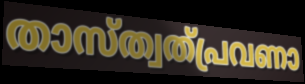
താസ്ത്വത്പ്രവണാ